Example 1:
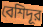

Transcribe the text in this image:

বেশিদূর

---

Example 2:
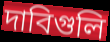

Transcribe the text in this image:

দাবিগুলি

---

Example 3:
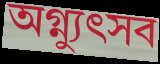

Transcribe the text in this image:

অগ্ন্যুৎসব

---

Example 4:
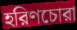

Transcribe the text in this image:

হরিণচোরা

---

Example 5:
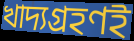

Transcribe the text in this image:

খাদ্যগ্রহণই